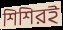
শিশিরই